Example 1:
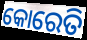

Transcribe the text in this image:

କୋରେତି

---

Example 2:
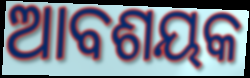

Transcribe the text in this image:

ଆବଶୟକ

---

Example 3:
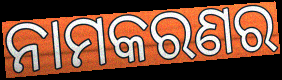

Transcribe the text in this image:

ନାମକରଣର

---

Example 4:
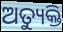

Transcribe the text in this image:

ଅତ୍ୟୁକ୍ତି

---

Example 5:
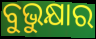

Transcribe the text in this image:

ବୁଭୁକ୍ଷାର